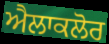
ਐਲਾਕਲੋਰ